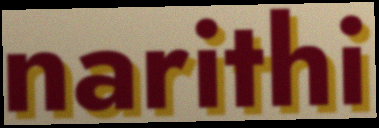
narithi